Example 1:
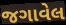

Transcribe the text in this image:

જગાવેલ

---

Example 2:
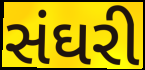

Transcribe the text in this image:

સંઘરી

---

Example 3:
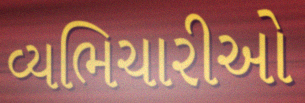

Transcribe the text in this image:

વ્યભિચારીઓ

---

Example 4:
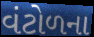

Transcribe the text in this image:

વંટોળના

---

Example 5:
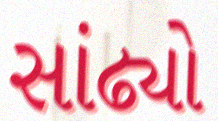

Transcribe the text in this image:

સાંઢ્યો